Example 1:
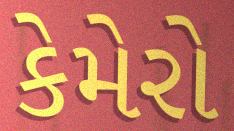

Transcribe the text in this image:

કેમેરો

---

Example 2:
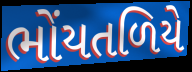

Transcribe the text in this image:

ભોંયતળિયે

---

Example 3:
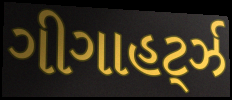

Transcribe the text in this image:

ગીગાહર્ટ્ઝ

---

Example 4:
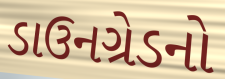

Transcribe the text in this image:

ડાઉનગ્રેડનો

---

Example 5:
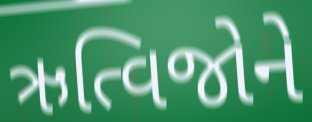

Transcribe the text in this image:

ઋત્વિજોને